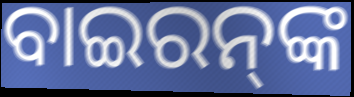
ବାଇରନ୍‌ଙ୍କ